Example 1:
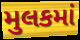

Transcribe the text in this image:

મુલકમાં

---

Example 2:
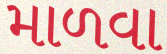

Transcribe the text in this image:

માળવા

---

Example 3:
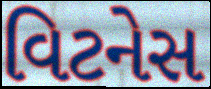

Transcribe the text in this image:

વિટનેસ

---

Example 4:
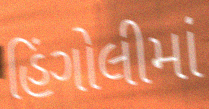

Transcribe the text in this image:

હિંગોલીમાં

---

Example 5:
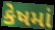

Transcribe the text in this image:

કેષમાં